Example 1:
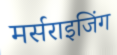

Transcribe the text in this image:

मर्सराइजिंग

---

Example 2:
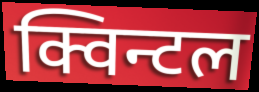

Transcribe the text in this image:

क्विन्टल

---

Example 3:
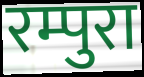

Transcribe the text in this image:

रम्पुरा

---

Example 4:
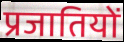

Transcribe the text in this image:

प्रजातियों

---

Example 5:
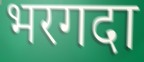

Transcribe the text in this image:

भरगदा